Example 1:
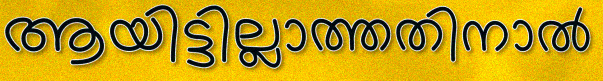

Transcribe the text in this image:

ആയിട്ടില്ലാത്തതിനാൽ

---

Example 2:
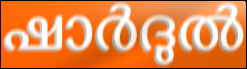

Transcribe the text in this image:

ഷാർദുൽ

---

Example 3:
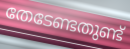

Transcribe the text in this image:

തേടേണ്ടതുണ്ട്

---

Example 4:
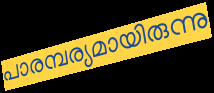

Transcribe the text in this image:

പാരമ്പര്യമായിരുന്നു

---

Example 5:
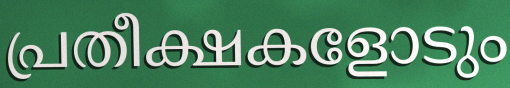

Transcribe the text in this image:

പ്രതീക്ഷകളോടും